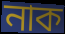
নাক